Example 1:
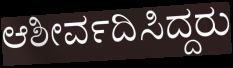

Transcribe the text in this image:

ಆಶೀರ್ವದಿಸಿದ್ದರು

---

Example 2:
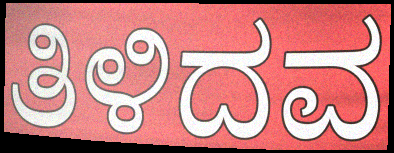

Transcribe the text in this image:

ತಿಳಿದವ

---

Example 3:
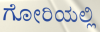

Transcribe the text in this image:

ಗೋರಿಯಲ್ಲಿ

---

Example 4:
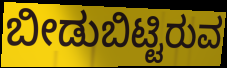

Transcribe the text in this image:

ಬೀಡುಬಿಟ್ಟಿರುವ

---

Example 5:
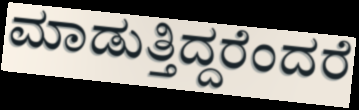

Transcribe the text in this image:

ಮಾಡುತ್ತಿದ್ದರೆಂದರೆ